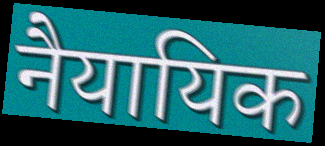
नैयायिक